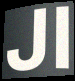
Jl